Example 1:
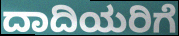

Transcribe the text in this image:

ದಾದಿಯರಿಗೆ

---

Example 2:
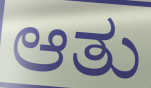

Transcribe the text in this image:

ಆತು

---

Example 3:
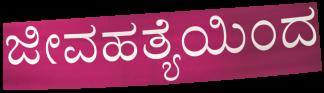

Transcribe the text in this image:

ಜೀವಹತ್ಯೆಯಿಂದ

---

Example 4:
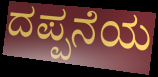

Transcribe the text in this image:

ದಪ್ಪನೆಯ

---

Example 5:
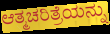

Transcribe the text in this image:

ಆತ್ಮಚರಿತ್ರೆಯನ್ನು